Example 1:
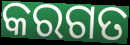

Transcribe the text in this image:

କରଗତ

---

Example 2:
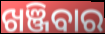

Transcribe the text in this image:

ଖଞ୍ଜିବାର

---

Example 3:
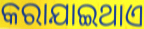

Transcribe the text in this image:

କରାଯାଇଥାଏ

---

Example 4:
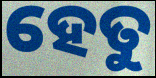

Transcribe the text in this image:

ହେତୁ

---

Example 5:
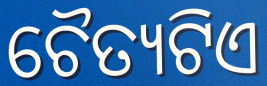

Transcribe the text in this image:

ଚୈତ୍ୟଟିଏ